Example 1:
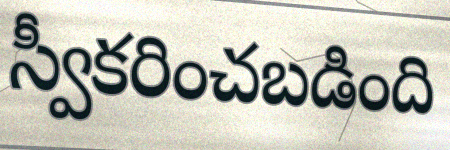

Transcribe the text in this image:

స్వీకరించబడింది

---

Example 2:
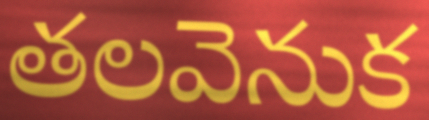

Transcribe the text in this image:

తలవెనుక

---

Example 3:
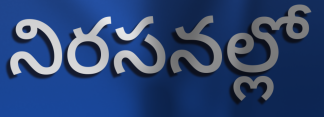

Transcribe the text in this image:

నిరసనల్లో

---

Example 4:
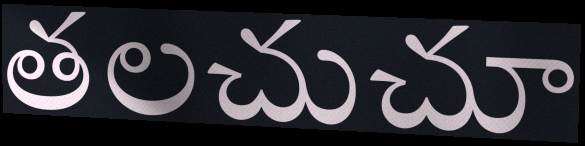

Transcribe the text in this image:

తలచుచూ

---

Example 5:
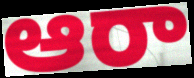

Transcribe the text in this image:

ఆరా